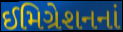
ઈમિગ્રેશનનાં